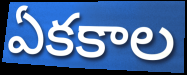
ఏకకాల